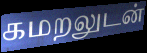
கமறலுடன்